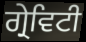
ਗ੍ਰੇਵਿਟੀ